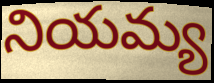
నియమ్య